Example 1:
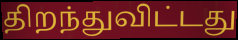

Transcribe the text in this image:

திறந்துவிட்டது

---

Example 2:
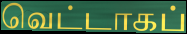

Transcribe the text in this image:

வெட்டாகப்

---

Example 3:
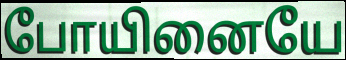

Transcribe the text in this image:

போயினையே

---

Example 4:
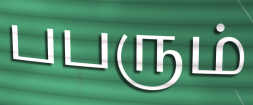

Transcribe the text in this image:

பபரும்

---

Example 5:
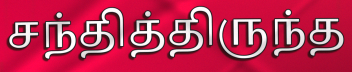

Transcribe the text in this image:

சந்தித்திருந்த